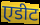
एडीट